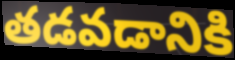
తడవడానికి